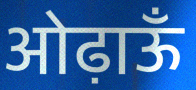
ओढ़ाऊँ